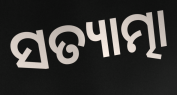
ସତ୍ୟାତ୍ମା